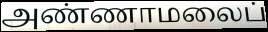
அண்ணாமலைப்